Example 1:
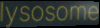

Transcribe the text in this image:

lysosome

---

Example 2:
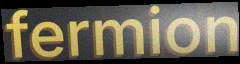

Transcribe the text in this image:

fermion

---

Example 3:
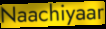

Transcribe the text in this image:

Naachiyaar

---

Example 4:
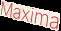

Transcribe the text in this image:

Maxima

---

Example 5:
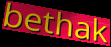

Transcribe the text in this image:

bethak